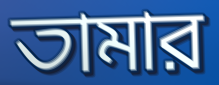
তামার